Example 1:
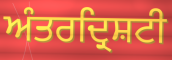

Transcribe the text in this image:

ਅੰਤਰਦ੍ਰਿਸ਼ਟੀ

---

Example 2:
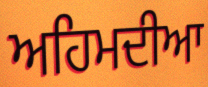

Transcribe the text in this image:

ਅਹਿਮਦੀਆ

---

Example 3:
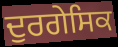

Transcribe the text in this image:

ਦੁਰਗੇਸਿਕ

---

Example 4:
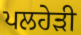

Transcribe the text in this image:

ਪਲਹੇੜੀ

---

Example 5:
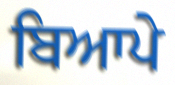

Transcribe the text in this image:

ਬਿਆਪੇ